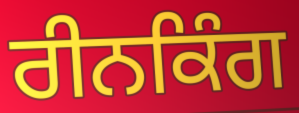
ਰੀਨਕਿੰਗ